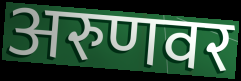
अरुणवर